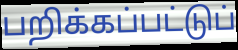
பறிக்கப்பட்டுப்